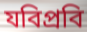
যবিপ্রবি